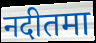
नदीतमा